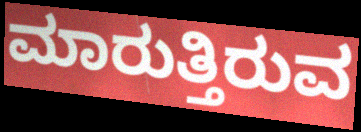
ಮಾರುತ್ತಿರುವ